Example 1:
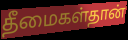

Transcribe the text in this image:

தீமைகள்தான்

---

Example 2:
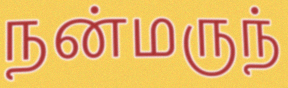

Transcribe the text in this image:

நன்மருந்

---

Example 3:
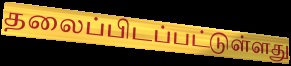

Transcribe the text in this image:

தலைப்பிடப்பட்டுள்ளது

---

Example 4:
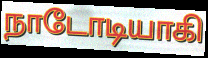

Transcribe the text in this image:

நாடோடியாகி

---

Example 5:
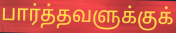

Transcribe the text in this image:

பார்த்தவளுக்குக்